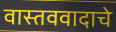
वास्तववादाचे